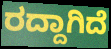
ರದ್ದಾಗಿದೆ